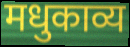
मधुकाव्य